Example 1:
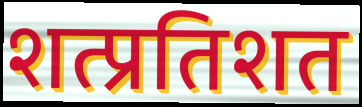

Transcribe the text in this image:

शत्प्रतिशत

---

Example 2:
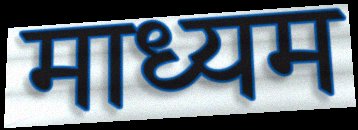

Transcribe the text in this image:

माध्यम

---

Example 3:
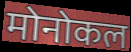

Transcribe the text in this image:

मोनोकल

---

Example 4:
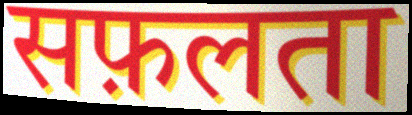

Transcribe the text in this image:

सफ़लता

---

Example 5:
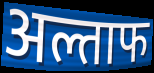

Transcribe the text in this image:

अल्ताफ